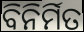
ବିନିର୍ମିତ